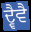
ਦ੍ਵੈਵੈ